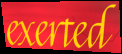
exerted